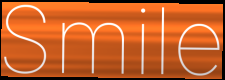
Smile